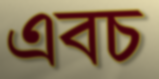
এবচ